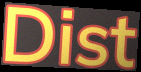
Dist